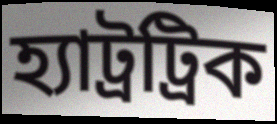
হ্যাট্রট্রিক